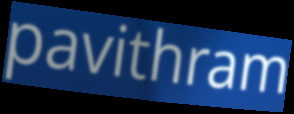
pavithram